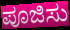
ಪೂಜಿಸು